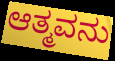
ಆತ್ಮವನು